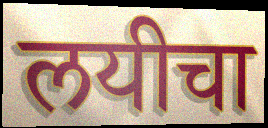
लयीचा